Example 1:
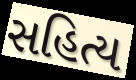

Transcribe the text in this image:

સહિત્ય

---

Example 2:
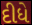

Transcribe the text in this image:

દીધે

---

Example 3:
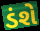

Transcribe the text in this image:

ડંશે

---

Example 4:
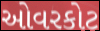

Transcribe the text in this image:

ઓવરકોટ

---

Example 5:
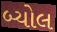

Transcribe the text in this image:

બ્યોલ